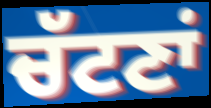
ਚੱਟਣਾਂ